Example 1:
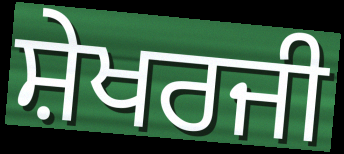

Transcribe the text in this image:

ਸ਼ੇਖਰਜੀ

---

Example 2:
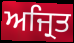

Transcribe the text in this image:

ਅਜ੍ਰਿਤ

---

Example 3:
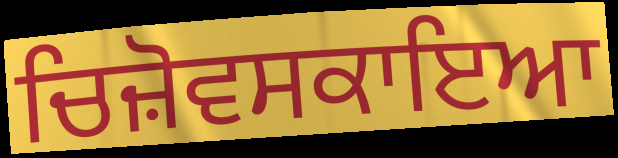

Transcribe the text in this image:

ਚਿਜ਼ੋਵਸਕਾਇਆ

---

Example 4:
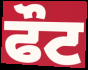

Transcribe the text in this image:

ਫੌਟ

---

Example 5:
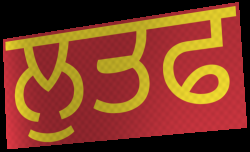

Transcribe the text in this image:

ਲੁਤਫ